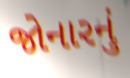
જોનારનું